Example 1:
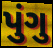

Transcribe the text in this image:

પુંગુ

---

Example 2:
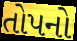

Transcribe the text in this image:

તોપનો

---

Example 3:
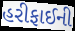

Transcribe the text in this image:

હરીફાઈની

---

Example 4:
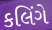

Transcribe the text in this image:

કલિંગે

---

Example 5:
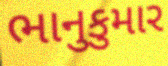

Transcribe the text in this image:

ભાનુકુમાર